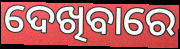
ଦେଖିବାରେ